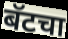
बॅटचा